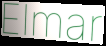
Elmar